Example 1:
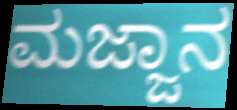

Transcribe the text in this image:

ಮಜ್ಜಾನ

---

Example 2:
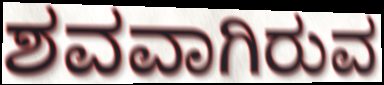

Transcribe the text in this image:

ಶವವಾಗಿರುವ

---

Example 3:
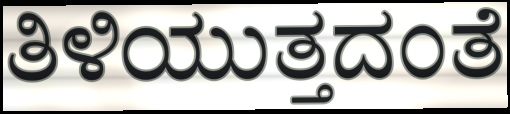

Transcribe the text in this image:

ತಿಳಿಯುತ್ತದಂತೆ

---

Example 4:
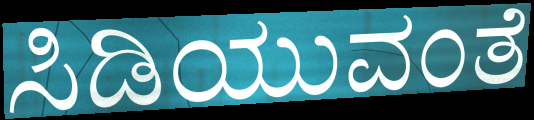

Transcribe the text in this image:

ಸಿಡಿಯುವಂತೆ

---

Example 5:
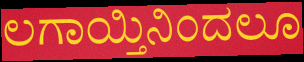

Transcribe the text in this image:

ಲಗಾಯ್ತಿನಿಂದಲೂ